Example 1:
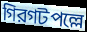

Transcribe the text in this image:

গিরগটপল্লে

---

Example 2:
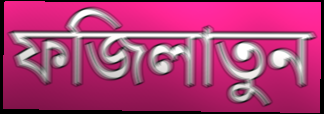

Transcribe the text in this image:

ফজিলাতুন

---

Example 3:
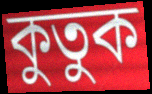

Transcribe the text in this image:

কুতুক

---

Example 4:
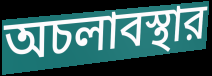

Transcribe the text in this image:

অচলাবস্থার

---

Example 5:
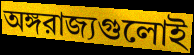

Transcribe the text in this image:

অঙ্গরাজ্যগুলোই